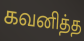
கவனித்த